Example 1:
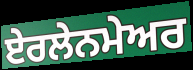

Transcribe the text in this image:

ਏਰਲੇਨਮੇਅਰ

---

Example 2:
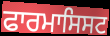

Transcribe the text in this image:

ਫਾਰਮਾਸਿਸਟ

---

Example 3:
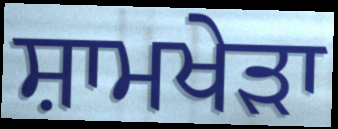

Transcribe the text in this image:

ਸ਼ਾਮਖੇੜਾ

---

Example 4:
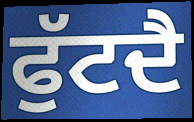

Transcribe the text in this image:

ਫੁੱਟਦੈ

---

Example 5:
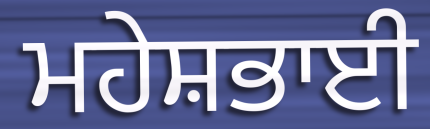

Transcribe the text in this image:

ਮਹੇਸ਼ਭਾਈ